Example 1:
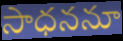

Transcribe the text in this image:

సాధననూ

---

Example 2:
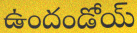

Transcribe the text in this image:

ఉందండోయ్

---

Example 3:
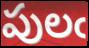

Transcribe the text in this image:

పులఁ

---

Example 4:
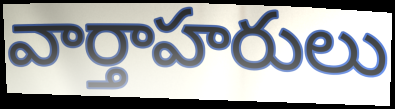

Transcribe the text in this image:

వార్తాహరులు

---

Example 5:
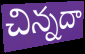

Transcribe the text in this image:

చిన్నదా